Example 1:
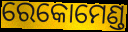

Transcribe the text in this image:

ରେକୋମେଣ୍ଡ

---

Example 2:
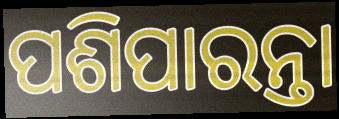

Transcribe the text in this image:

ପଶିପାରନ୍ତା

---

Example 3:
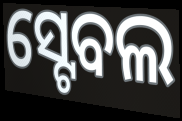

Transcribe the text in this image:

ସ୍ଟେବଲ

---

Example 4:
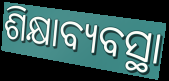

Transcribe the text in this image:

ଶିକ୍ଷାବ୍ୟବସ୍ଥା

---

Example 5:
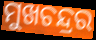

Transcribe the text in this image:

ମୁଖଚନ୍ଦ୍ରର